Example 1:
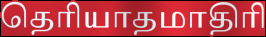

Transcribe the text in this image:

தெரியாதமாதிரி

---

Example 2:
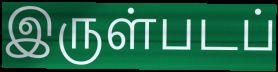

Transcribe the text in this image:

இருள்படப்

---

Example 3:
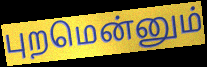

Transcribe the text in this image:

புறமென்னும்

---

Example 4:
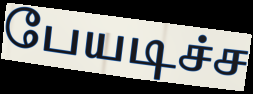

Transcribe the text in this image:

பேயடிச்ச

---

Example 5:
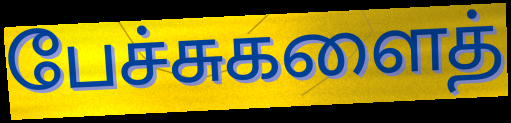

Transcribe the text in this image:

பேச்சுகளைத்